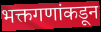
भक्तगणांकडून